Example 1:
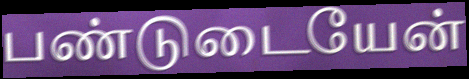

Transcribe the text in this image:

பண்டுடையேன்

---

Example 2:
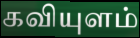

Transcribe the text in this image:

கவியுளம்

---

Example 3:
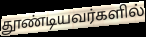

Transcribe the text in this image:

தூண்டியவர்களில்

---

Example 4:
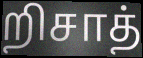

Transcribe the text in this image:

றிசாத்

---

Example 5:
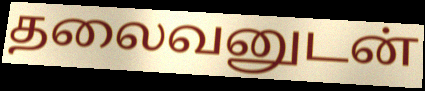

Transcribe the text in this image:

தலைவனுடன்